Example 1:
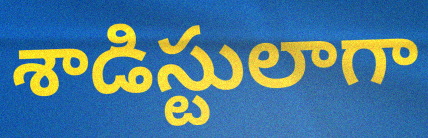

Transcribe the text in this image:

శాడిస్టులాగా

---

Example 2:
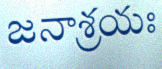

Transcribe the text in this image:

జనాశ్రయః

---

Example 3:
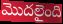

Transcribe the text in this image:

మొదలైంది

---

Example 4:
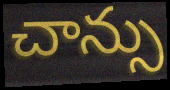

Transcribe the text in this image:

చాన్సు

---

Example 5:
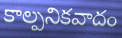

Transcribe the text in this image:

కాల్పనికవాదం